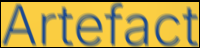
Artefact